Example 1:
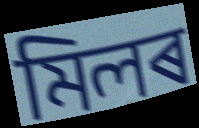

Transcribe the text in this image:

মিলৰ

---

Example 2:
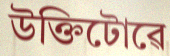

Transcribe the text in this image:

উক্তিটোৱে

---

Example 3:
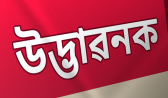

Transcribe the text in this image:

উদ্ভাৱনক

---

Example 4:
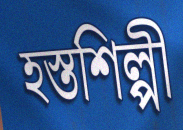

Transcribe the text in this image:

হস্তশিল্পী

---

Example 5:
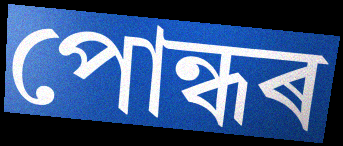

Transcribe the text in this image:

পোন্ধৰ